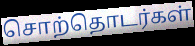
சொற்தொடர்கள்